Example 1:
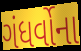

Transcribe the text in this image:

ગંધર્વોના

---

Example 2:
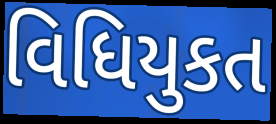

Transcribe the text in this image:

વિધિયુકત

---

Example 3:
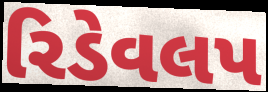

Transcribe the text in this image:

રિડેવલપ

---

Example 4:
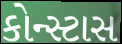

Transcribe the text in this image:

કોન્સ્ટાસ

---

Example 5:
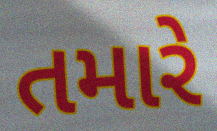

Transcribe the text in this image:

તમારે